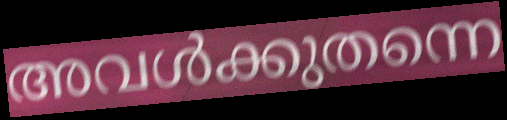
അവൾക്കുതന്നെ